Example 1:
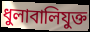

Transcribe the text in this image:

ধুলাবালিযুক্ত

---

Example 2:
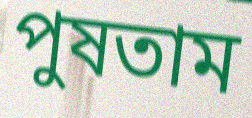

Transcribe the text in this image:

পুষতাম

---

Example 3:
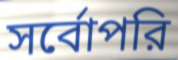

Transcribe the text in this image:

সর্বোপরি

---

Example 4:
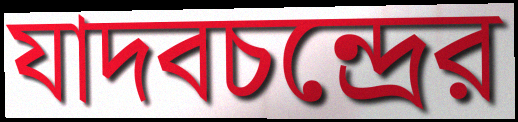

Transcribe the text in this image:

যাদবচন্দ্রের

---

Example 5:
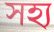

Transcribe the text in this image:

সহ্য